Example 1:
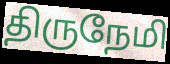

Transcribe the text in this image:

திருநேமி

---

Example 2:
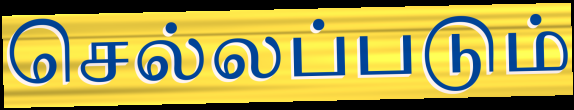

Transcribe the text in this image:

செல்லப்படும்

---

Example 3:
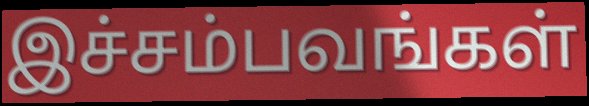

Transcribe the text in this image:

இச்சம்பவங்கள்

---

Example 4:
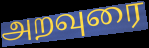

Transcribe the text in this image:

அறவுரை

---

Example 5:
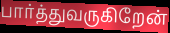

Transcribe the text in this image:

பார்த்துவருகிறேன்